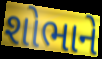
શોભાને